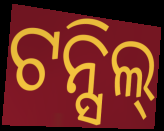
ଟନ୍ସିଲ୍